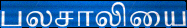
பலசாலியை